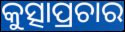
କୁତ୍ସାପ୍ରଚାର